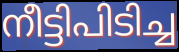
നീട്ടിപിടിച്ച